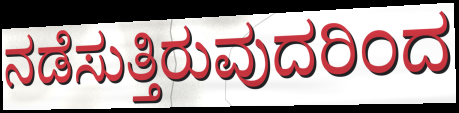
ನಡೆಸುತ್ತಿರುವುದರಿಂದ